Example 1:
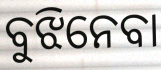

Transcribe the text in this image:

ବୁଝିନେବା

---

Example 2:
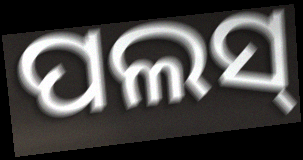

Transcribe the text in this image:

ପଲସ୍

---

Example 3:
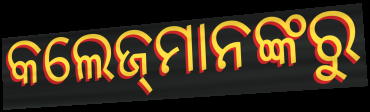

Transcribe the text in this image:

କଲେଜ୍‌ମାନଙ୍କରୁ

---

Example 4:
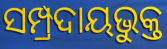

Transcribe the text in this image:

ସମ୍ପ୍ରଦାୟଭୁକ୍ତ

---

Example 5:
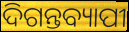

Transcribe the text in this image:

ଦିଗନ୍ତବ୍ୟାପୀ